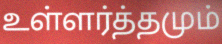
உள்ளர்த்தமும்